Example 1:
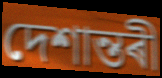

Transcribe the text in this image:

দেশান্তৰী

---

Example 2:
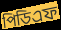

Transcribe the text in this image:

পিডিএফ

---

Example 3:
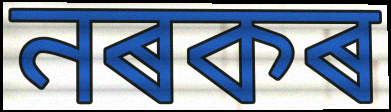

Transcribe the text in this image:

নৰকৰ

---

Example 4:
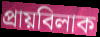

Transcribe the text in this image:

প্ৰায়বিলাক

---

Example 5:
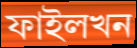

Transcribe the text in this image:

ফাইলখন